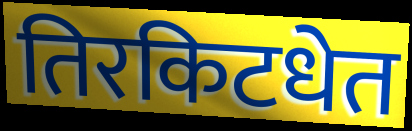
तिरकिटधेत